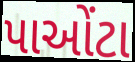
પાઓંટા